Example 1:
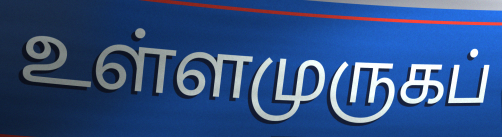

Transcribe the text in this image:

உள்ளமுருகப்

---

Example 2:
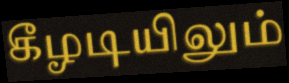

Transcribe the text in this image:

கீழடியிலும்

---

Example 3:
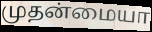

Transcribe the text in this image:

முதன்மையா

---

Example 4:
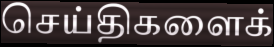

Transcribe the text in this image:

செய்திகளைக்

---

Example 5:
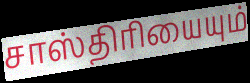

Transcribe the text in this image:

சாஸ்திரியையும்